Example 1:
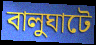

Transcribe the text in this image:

বালুঘাটে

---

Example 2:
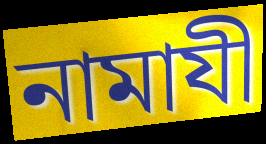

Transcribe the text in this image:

নামাযী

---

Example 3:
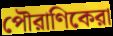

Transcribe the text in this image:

পৌরাণিকেরা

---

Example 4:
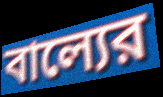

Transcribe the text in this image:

বাল্যের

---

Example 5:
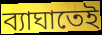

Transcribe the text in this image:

ব্যাঘাতেই